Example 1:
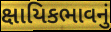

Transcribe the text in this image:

ક્ષાયિકભાવનું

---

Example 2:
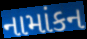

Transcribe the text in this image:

નામાંકન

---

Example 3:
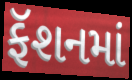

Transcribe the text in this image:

ફૅશનમાં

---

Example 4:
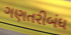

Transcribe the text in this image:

ગણતરીબંધ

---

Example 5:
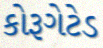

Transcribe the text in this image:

કોરૂગેટેડ